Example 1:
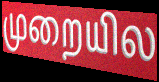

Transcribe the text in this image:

முறையில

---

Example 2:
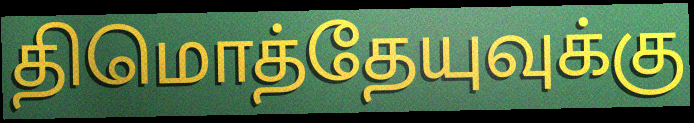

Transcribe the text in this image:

திமொத்தேயுவுக்கு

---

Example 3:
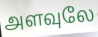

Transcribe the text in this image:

அளவுலே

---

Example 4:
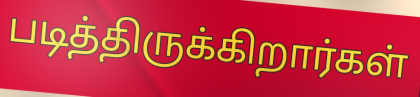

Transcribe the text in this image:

படித்திருக்கிறார்கள்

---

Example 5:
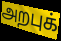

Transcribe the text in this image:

அறபுக்